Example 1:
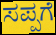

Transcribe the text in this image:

ಸಪ್ಪಗೆ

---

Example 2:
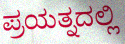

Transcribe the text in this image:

ಪ್ರಯತ್ನದಲ್ಲಿ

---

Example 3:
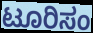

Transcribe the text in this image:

ಟೂರಿಸಂ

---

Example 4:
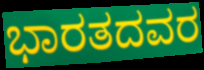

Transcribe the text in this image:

ಭಾರತದವರ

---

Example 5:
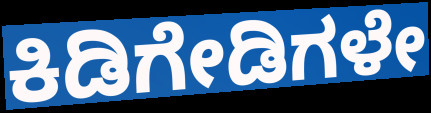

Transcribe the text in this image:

ಕಿಡಿಗೇಡಿಗಳೇ